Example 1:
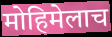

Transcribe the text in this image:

मोहिमेलाच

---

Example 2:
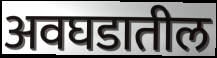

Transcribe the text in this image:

अवघडातील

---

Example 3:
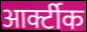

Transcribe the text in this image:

आर्क्टीक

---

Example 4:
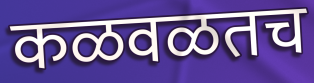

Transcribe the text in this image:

कळवळतच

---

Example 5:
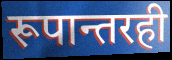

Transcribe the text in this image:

रूपान्तरही